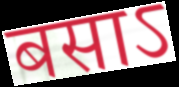
बसाऽ